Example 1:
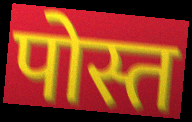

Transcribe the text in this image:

पोस्त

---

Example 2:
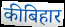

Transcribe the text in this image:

कीबिहार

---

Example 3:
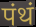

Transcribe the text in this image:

पंथं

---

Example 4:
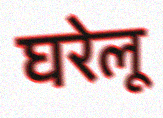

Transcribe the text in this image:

घरेलू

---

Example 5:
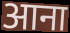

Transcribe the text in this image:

आना